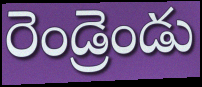
రెండ్రెండు